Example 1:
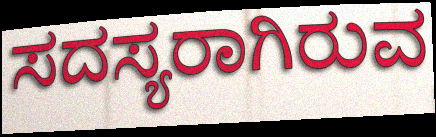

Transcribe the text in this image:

ಸದಸ್ಯರಾಗಿರುವ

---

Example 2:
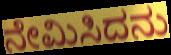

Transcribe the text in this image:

ನೇಮಿಸಿದನು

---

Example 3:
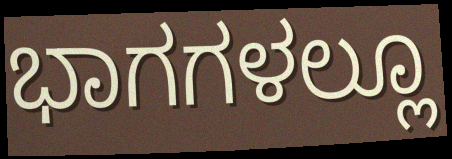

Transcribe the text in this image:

ಭಾಗಗಳಲ್ಲೂ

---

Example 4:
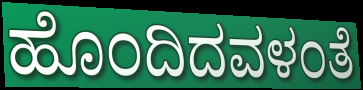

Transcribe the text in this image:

ಹೊಂದಿದವಳಂತೆ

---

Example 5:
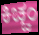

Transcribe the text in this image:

ಕಿಚ್ಚಂ